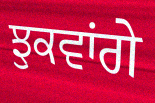
ਝੁਕਵਾਂਗੇ